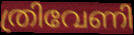
ത്രിവേണി